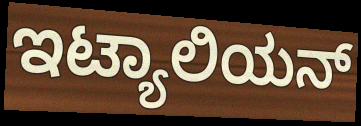
ಇಟ್ಯಾಲಿಯನ್